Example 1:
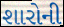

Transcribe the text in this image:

શારોની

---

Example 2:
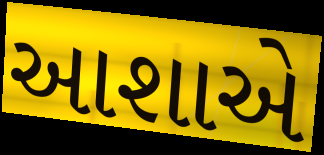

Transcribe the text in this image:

આશાએ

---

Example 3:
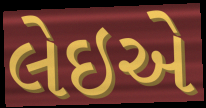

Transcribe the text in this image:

લેઇએ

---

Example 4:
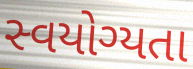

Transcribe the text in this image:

સ્વયોગ્યતા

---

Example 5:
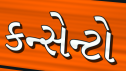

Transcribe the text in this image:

કન્સેન્ટો